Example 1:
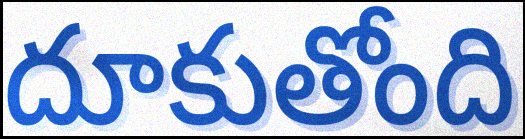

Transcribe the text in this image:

దూకుతోంది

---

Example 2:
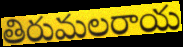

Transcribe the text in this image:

తిరుమలరాయ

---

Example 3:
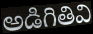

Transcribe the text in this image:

అడిగితివి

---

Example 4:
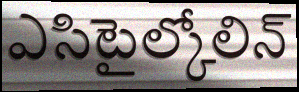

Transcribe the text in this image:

ఎసిటైల్కోలిన్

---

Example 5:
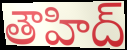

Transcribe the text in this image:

తౌహిద్